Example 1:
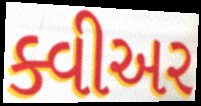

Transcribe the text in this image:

ક્વીઅર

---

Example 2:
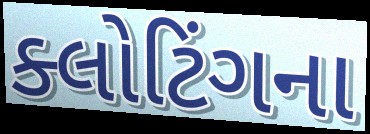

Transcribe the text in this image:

ક્લોટિંગના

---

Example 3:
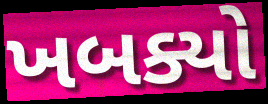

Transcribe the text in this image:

ખબક્યો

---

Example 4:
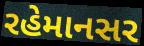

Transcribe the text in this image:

રહેમાનસર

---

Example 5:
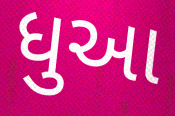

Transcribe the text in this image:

ધુઆ